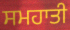
ਸਮਹਾਤੀ